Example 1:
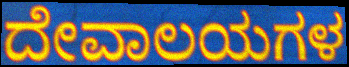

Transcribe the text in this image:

ದೇವಾಲಯಗಳ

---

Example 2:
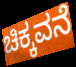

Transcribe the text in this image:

ಚಿಕ್ಕವನೆ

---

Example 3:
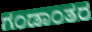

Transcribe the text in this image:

ಗಂಡಾಂತರ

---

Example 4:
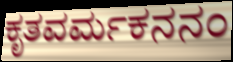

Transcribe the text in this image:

ಕೃತವರ್ಮಕನನಂ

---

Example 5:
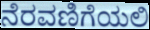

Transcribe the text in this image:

ನೆರವಣಿಗೆಯಲಿ